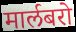
मार्लबरो